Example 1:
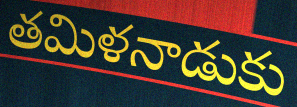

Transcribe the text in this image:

తమిళనాడుకు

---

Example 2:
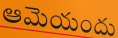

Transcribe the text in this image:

ఆమెయందు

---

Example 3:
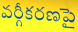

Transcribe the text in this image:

వర్గీకరణపై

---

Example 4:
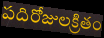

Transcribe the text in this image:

పదిరోజులక్రితం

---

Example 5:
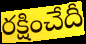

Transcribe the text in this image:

రక్షించేదీ